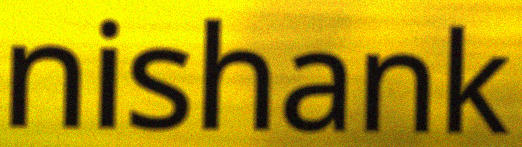
nishank